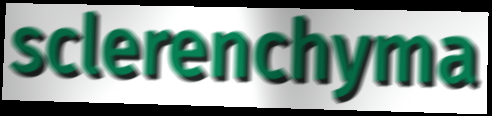
sclerenchyma